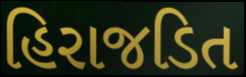
હિરાજડિત